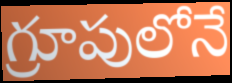
గ్రూపులోనే